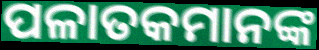
ପଳାତକମାନଙ୍କ